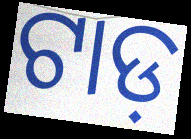
ଟାଡ଼